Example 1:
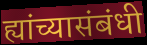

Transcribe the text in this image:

ह्यांच्यासंबंधी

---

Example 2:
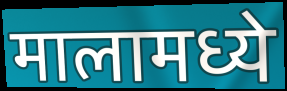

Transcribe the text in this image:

मालामध्ये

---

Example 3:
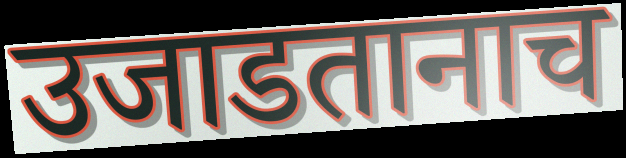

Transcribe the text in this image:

उजाडतानाच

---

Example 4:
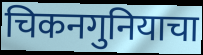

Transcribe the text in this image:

चिकनगुनियाचा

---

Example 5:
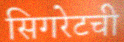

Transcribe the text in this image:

सिगरेटची